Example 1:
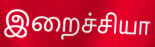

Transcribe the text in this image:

இறைச்சியா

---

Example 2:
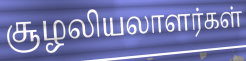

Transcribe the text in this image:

சூழலியலாளர்கள்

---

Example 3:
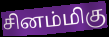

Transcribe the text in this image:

சினம்மிகு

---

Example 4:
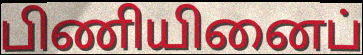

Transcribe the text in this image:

பிணியினைப்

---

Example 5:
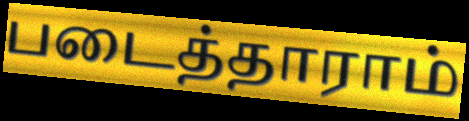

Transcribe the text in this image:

படைத்தாராம்